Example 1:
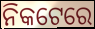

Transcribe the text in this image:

ନିକଟେରେ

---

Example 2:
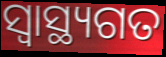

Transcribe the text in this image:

ସ୍ବାସ୍ଥ୍ୟଗତ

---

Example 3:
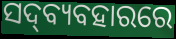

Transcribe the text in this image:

ସଦ୍‍ବ୍ୟବହାରରେ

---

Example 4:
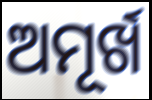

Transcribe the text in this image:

ଅମୂର୍ଖ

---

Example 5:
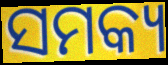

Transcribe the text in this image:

ସମକ୍ୟ